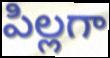
పిల్లగా